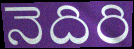
నెదిరి